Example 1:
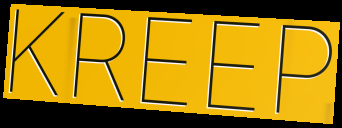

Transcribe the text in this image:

KREEP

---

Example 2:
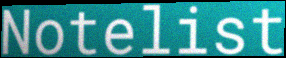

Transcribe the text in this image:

Notelist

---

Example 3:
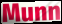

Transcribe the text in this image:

Munn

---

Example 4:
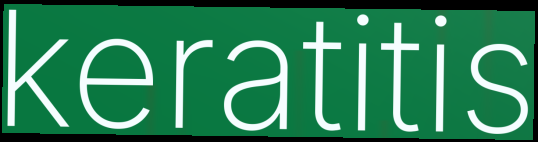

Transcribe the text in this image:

keratitis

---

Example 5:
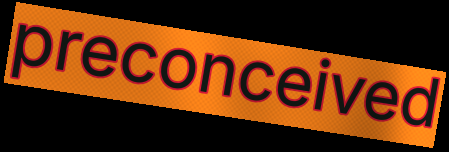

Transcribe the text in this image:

preconceived